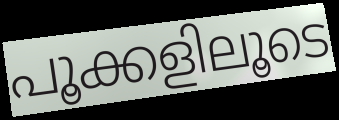
പൂക്കളിലൂടെ